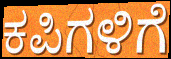
ಕಪಿಗಳಿಗೆ